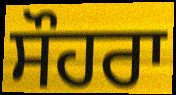
ਸੌਹਰਾ